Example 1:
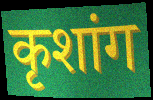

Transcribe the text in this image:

कृशांग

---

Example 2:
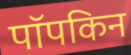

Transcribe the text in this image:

पॉपकिन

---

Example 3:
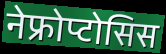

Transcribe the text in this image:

नेफ्रोप्टोसिस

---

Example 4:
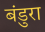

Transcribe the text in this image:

बंडुरा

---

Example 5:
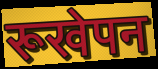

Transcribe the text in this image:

रूखेपन